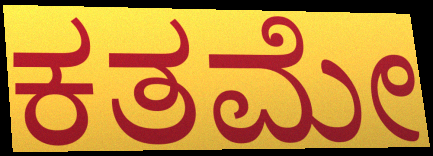
ಕತಮೇ